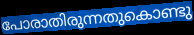
പോരാതിരുന്നതുകൊണ്ടു